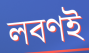
লবণই